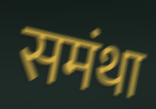
समंथा